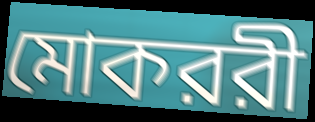
মোকররী